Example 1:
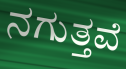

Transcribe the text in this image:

ನಗುತ್ತವೆ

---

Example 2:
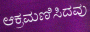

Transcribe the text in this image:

ಆಕ್ರಮಣಿಸಿದವು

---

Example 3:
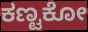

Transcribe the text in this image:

ಕಣ್ಟಕೋ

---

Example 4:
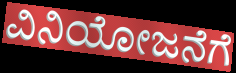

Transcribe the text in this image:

ವಿನಿಯೋಜನೆಗೆ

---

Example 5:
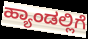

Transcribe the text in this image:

ಹ್ಯಾಂಡಲ್ಲಿಗೆ